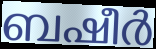
ബഷീർ